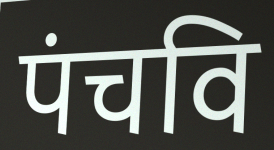
पंचवि